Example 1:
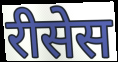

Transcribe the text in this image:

रीसेस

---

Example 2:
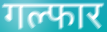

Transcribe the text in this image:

गल्फार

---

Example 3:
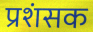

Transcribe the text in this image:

प्रशंसक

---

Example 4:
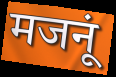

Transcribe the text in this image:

मजनूं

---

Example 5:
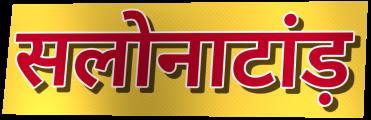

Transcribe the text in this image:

सलोनाटांड़